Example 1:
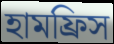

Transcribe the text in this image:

হামফ্রিস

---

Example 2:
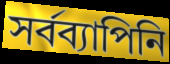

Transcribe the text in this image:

সর্বব্যাপিনি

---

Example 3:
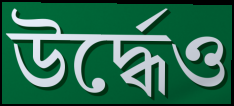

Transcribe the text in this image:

উর্দ্ধেও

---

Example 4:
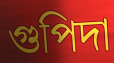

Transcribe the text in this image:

গুপিদা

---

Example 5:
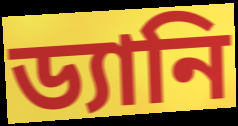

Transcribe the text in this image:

ড্যানি